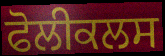
ਫੋਲੀਕਲਸ